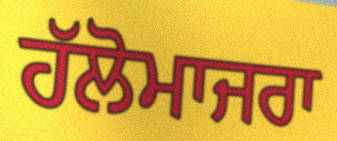
ਹੱਲੋਮਾਜਰਾ